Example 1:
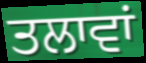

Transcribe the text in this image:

ਤਲਾਵਾਂ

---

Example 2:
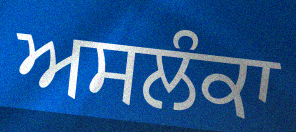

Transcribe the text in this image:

ਅਸਲੰਕਾ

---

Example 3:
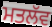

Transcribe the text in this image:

ਮਤਲੱਵ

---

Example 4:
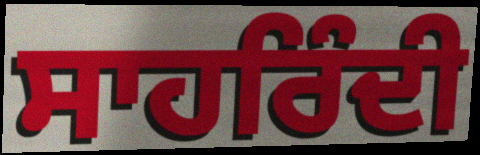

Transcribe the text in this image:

ਸਾਹਰਿੰਦੀ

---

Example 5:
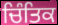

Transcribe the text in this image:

ਚਿੰਤਿਕ